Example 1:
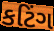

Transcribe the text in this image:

કટિંગ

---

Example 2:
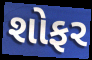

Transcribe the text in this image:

શોફર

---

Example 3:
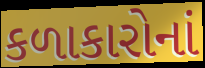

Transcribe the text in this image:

કળાકારોનાં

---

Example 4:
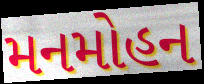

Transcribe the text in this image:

મનમોહન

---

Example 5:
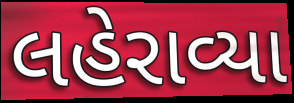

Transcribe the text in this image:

લહેરાવ્યા